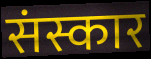
संस्‍कार